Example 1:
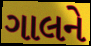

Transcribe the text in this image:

ગાલને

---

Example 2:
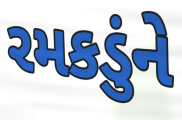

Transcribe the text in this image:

રમકડુંને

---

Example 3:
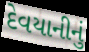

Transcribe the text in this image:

દેવયાનીનું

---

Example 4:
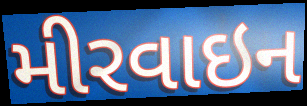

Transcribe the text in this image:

મીરવાઇન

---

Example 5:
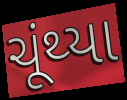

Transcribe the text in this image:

ચૂંથ્યા